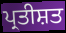
ਪ੍ਰਤੀਸ਼ਤ